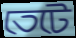
তেটে